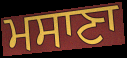
ਮਸਾਣਾ